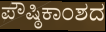
ಪೌಷ್ಠಿಕಾಂಶದ